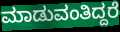
ಮಾಡುವಂತಿದ್ದರೆ